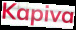
Kapiva